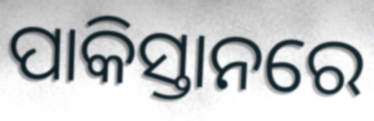
ପାକିସ୍ତାନରେ